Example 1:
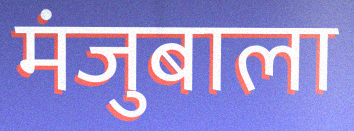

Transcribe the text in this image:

मंजुबाला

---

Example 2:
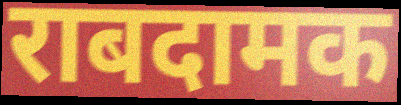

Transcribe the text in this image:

राबदामक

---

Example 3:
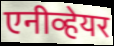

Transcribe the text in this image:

एनीव्हेयर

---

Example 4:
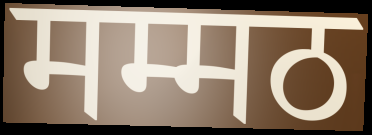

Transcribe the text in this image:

मम्मठ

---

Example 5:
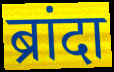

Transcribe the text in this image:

ब्रांदा